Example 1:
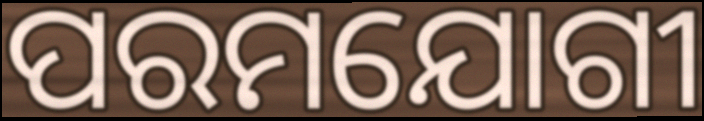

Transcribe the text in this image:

ପରମଯୋଗୀ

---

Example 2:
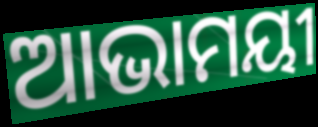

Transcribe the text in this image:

ଆଭାମୟୀ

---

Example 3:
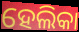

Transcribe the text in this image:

ହେଲିକା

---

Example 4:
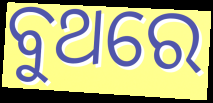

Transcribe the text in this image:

ବୁଥରେ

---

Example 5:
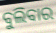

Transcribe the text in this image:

ବୁଲିବାର